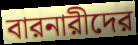
বারনারীদের